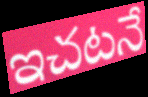
ఇచటనే